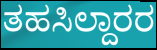
ತಹಸಿಲ್ದಾರರ